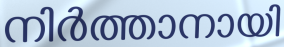
നിർത്താനായി